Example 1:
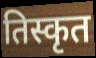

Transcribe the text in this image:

तिस्कृत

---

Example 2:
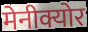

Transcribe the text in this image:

मेनीक्योर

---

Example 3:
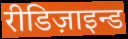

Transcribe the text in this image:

रीडिज़ाइन्ड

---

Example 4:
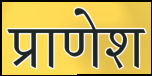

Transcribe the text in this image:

प्राणेश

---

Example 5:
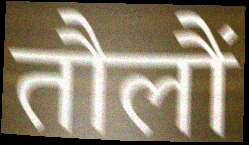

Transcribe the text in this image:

तौलौं